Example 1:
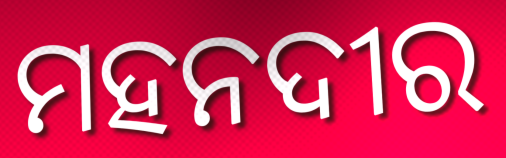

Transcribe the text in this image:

ମହନଦୀର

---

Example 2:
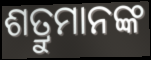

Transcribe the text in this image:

ଶତ୍ରୁମାନଙ୍କ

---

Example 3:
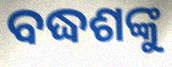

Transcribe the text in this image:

ବଦ୍ଧଶଙ୍କୁ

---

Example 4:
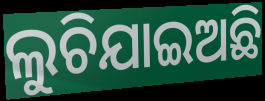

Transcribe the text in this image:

ଲୁଚିଯାଇଅଛି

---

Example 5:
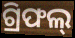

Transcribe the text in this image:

ଗ୍ରିଫଲ୍